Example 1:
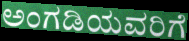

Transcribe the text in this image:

ಅಂಗಡಿಯವರಿಗೆ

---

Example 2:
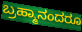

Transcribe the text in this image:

ಬ್ರಹ್ಮಾನಂದರೂ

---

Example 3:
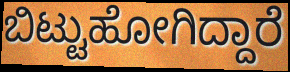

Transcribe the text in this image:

ಬಿಟ್ಟುಹೋಗಿದ್ದಾರೆ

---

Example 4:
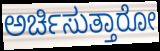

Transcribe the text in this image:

ಅರ್ಚಿಸುತ್ತಾರೋ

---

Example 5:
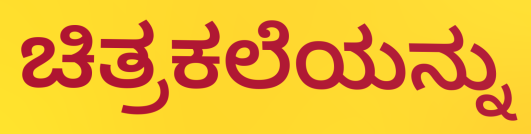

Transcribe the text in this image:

ಚಿತ್ರಕಲೆಯನ್ನು